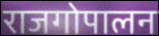
राजगोपालन